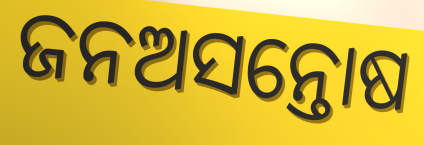
ଜନଅସନ୍ତୋଷ